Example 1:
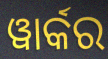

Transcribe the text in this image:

ୱାର୍କର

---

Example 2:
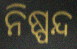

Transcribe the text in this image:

ନିଷ୍ପନ୍ଦ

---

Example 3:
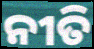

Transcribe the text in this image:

ନୀତି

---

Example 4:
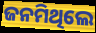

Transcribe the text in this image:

ଜନମିଥିଲେ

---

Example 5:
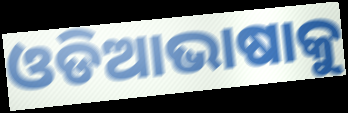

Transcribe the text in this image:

ଓଡିଆଭାଷାକୁ